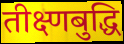
तीक्ष्णबुद्धि